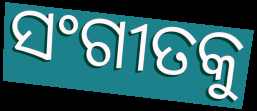
ସଂଗୀତକୁ